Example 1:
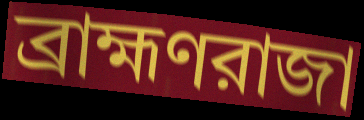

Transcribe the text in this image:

ব্রাহ্মণরাজা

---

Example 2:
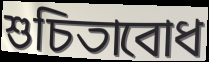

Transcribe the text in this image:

শুচিতাবোধ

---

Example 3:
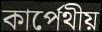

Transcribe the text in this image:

কার্পেথীয়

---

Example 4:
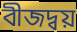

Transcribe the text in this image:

বীজদ্বয়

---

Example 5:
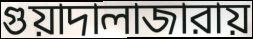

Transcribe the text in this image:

গুয়াদালাজারায়